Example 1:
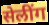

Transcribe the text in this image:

सेलींग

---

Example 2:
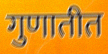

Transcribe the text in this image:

गुणातीत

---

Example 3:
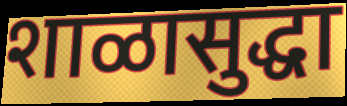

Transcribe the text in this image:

शाळासुद्धा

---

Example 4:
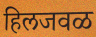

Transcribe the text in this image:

हिलजवळ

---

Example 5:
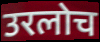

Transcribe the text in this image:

उरलोच